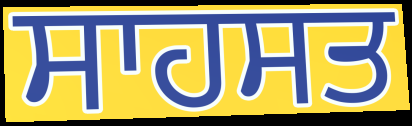
ਸਾਹਸਤ